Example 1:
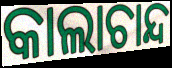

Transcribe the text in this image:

କାଲାଚାନ୍ଦ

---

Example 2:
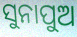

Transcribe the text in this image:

ସୁନାପୁଅ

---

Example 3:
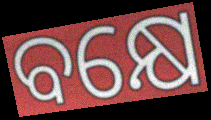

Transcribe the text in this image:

ବକ୍ଷେ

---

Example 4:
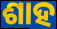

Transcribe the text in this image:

ଶାହ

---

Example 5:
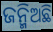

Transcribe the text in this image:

ଜନ୍ମିଅଛି